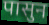
पासुन